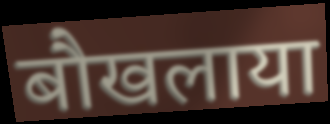
बौखलाया